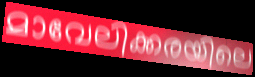
മാവേലിക്കരയിലെ